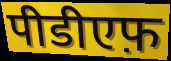
पीडीएफ़